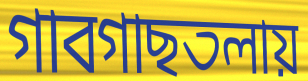
গাবগাছতলায়